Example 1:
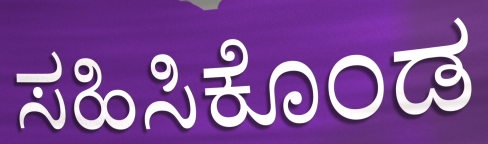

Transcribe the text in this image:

ಸಹಿಸಿಕೊಂಡ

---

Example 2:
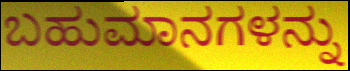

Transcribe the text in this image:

ಬಹುಮಾನಗಳನ್ನು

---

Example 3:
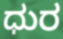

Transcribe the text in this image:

ಧುರ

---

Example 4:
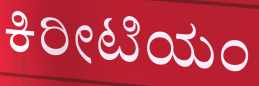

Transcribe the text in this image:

ಕಿರೀಟಿಯಂ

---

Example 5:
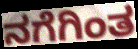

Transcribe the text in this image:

ನಗೆಗಿಂತ